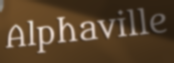
Alphaville